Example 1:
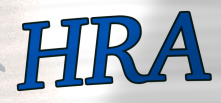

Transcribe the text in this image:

HRA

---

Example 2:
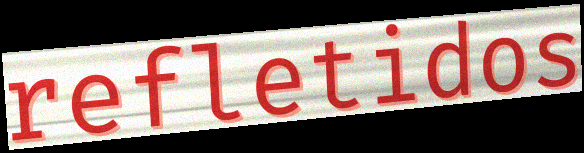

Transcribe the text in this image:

refletidos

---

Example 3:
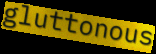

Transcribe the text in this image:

gluttonous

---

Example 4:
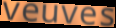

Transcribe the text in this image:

veuves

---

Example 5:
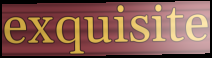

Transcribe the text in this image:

exquisite